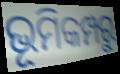
ଭୂମିକମ୍ପରୁ